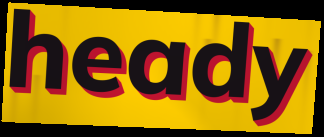
heady